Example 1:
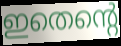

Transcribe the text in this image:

ഇതെന്റെ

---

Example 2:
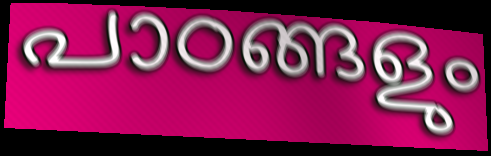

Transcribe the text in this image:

പാഠങ്ങളും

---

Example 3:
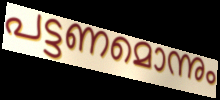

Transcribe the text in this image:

പട്ടണമൊന്നും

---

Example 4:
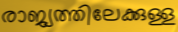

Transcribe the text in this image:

രാജ്യത്തിലേക്കുള്ള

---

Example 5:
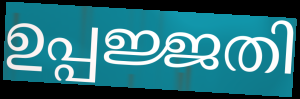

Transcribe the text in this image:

ഉപ്പജ്ജതി